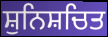
ਸ਼ੁਨਿਸ਼ਚਿਤ